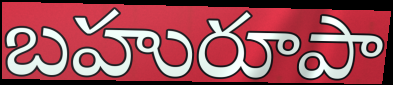
బహురూపా